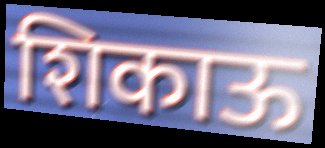
शिकाऊ